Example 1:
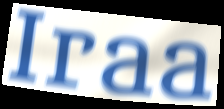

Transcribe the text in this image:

Iraa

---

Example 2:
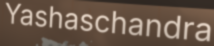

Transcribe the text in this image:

Yashaschandra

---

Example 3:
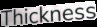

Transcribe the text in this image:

Thickness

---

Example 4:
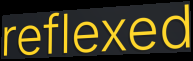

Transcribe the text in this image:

reflexed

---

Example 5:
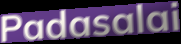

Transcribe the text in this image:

Padasalai